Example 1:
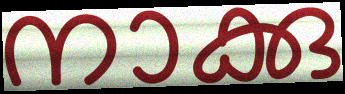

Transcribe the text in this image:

നാക്കു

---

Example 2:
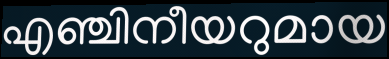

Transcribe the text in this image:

എഞ്ചിനീയറുമായ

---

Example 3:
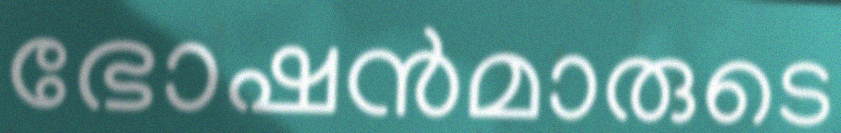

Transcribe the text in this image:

ഭോഷൻമാരുടെ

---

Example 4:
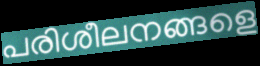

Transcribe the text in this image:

പരിശീലനങ്ങളെ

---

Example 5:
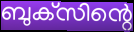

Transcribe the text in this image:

ബുക്‌സിന്റെ